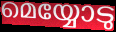
മെയ്യോടു